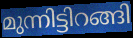
മുന്നിട്ടിറങ്ങി